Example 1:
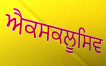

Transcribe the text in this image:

ਐਕਸਕਲੂਸਿਵ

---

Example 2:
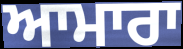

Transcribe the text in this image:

ਆਮਾਰਾ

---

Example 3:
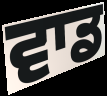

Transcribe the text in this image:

ਵਾਡ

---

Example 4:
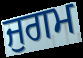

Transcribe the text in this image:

ਜੁਗਮ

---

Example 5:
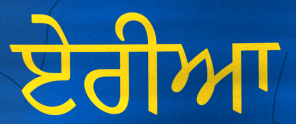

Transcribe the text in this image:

ਏਰੀਆ